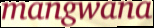
mangwana